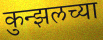
कुन्झलच्या